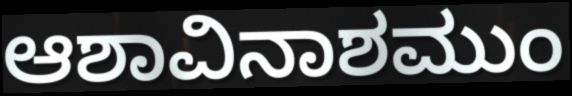
ಆಶಾವಿನಾಶಮುಂ